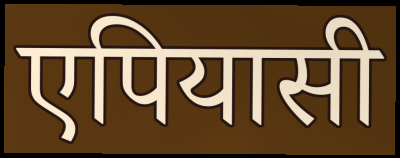
एपियासी